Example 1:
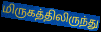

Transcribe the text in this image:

மிருகத்திலிருந்து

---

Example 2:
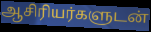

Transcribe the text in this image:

ஆசிரியர்களுடன்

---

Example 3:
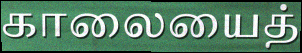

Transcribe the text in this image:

காலையைத்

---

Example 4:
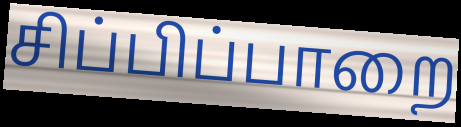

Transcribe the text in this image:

சிப்பிப்பாறை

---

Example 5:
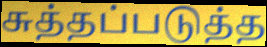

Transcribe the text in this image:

சுத்தப்படுத்த